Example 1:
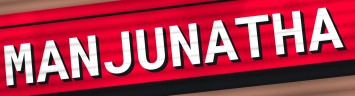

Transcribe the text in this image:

MANJUNATHA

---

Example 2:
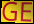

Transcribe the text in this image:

GE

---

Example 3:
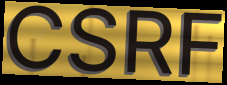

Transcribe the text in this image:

CSRF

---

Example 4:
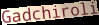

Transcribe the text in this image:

Gadchiroli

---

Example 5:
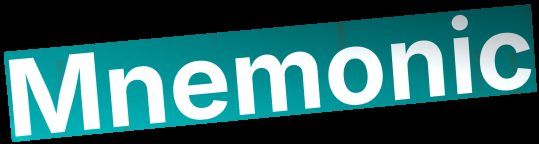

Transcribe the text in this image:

Mnemonic